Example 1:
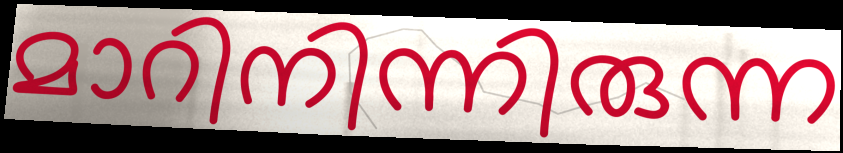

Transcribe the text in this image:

മാറിനിന്നിരുന്ന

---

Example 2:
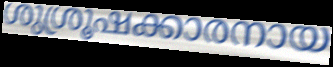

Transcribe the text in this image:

ശുശ്രൂഷക്കാരനായ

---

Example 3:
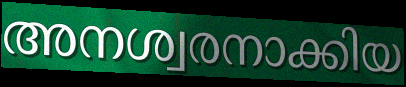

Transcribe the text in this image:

അനശ്വരനാക്കിയ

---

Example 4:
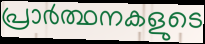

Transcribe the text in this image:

പ്രാർത്ഥനകളുടെ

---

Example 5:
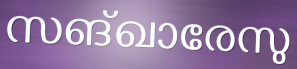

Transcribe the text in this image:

സങ്ഖാരേസു